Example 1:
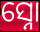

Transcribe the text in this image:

ସ୍ନୋ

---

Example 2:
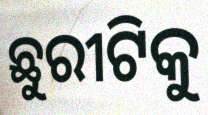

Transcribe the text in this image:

ଛୁରୀଟିକୁ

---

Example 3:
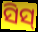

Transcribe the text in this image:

ସିସ୍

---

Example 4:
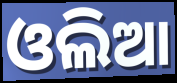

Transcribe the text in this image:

ଓଲିଆ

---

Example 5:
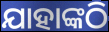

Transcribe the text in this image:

ଯାହାଙ୍କଠି